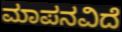
ಮಾಪನವಿದೆ